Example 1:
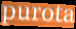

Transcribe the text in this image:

purota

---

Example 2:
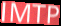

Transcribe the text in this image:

IMTP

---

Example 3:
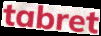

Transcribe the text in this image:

tabret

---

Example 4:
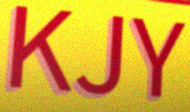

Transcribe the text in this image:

KJY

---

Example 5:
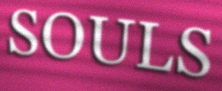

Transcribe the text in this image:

SOULS